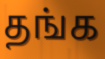
தங்க